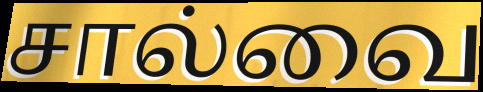
சால்வை